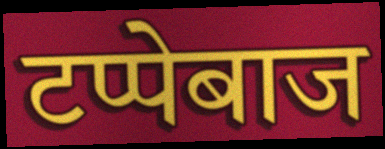
टप्पेबाज